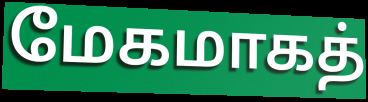
மேகமாகத்